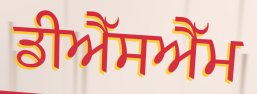
ਡੀਐੱਸਐੱਮ